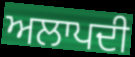
ਅਲਾਪਦੀ